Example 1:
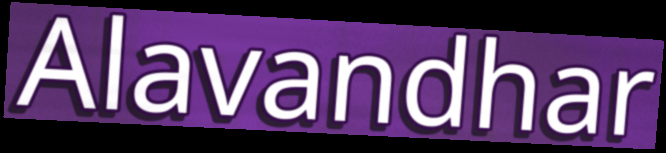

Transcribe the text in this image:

Alavandhar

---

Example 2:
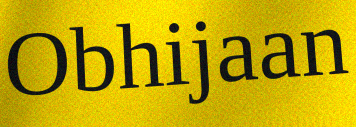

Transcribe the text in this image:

Obhijaan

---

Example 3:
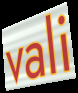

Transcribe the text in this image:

vali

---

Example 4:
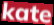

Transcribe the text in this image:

kate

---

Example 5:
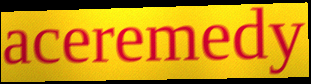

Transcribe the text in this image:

aceremedy